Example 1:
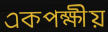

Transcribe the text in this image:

একপক্ষীয়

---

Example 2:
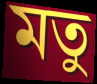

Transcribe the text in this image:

মতু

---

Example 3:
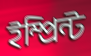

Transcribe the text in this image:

ইম্প্ৰিন্ট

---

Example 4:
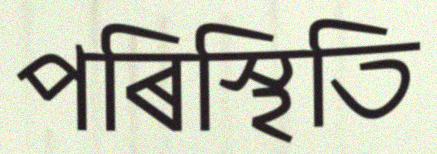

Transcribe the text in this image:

পৰিস্থিতি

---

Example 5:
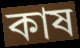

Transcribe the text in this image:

কাষ